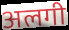
अलगी